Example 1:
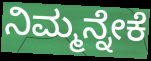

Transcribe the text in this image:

ನಿಮ್ಮನ್ನೇಕೆ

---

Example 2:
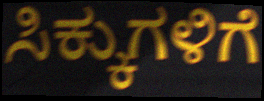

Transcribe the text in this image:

ಸಿಕ್ಕುಗಳಿಗೆ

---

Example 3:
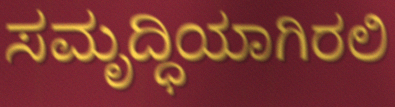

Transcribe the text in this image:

ಸಮೃದ್ಧಿಯಾಗಿರಲಿ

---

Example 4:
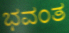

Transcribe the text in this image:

ಭವಂತ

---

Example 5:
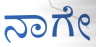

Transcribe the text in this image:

ನಾಗೇ